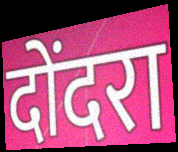
दोंदरा